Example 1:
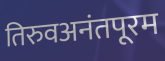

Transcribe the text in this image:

तिरुवअनंतपूरम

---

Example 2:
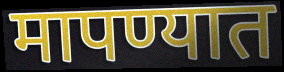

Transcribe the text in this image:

मापण्यात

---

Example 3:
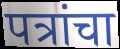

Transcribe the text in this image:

पत्रांचा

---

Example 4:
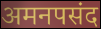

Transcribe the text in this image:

अमनपसंद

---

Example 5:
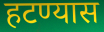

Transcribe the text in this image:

हटण्यास